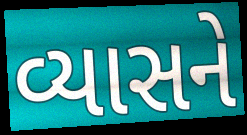
વ્યાસને